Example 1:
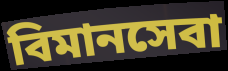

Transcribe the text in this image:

বিমানসেবা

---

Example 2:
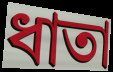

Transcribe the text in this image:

ধাতা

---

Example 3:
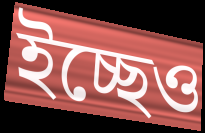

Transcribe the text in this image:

ইচ্ছেও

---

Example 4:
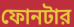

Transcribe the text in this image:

ফোনটার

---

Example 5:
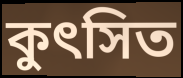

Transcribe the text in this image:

কুৎসিত